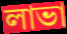
লাভা